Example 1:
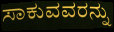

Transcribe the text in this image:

ಸಾಕುವವರನ್ನು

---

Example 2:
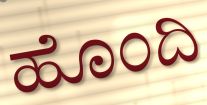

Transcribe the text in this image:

ಹೊಂದಿ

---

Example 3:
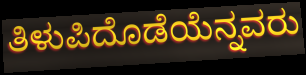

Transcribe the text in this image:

ತಿಳುಪಿದೊಡೆಯೆನ್ನವರು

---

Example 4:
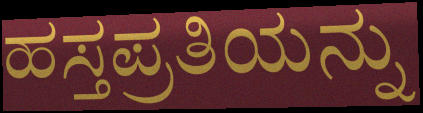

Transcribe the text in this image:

ಹಸ್ತಪ್ರತಿಯನ್ನು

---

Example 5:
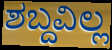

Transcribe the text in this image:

ಶಬ್ದವಿಲ್ಲ